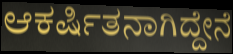
ಆಕರ್ಷಿತನಾಗಿದ್ದೇನೆ